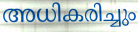
അധികരിച്ചും